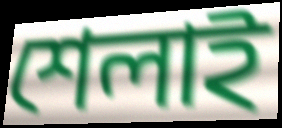
শেলাই